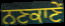
ਨਣਕਾਣੇਂ